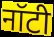
नॉटी